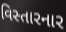
વિસ્તારનાર